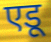
एडू